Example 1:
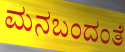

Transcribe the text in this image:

ಮನಬಂದಂತೆ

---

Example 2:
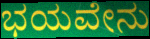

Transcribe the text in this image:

ಭಯವೇನು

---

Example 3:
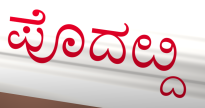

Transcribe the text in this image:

ಪೊದೞ್ದ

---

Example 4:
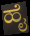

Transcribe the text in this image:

ಹೈ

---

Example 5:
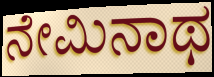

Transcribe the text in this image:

ನೇಮಿನಾಥ